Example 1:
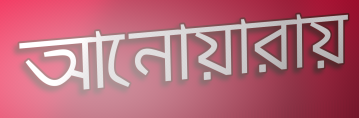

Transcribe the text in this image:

আনোয়ারায়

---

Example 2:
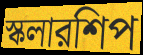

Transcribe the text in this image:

স্কলারশিপ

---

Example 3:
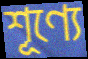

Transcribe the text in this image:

শূণ্যে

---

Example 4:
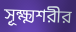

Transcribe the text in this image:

সূক্ষ্মশরীর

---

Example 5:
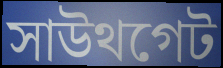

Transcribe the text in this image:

সাউথগেট